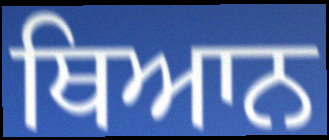
ਥਿਆਨ